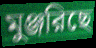
মুঞ্জরিছে